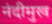
नंदीमुख